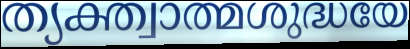
ത്യക്ത്വാത്മശുദ്ധയേ